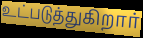
உட்படுத்துகிறார்